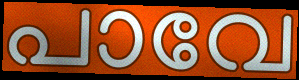
പാവേ